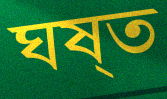
ঘষ্ত